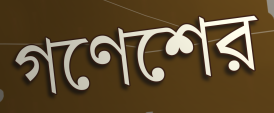
গণেশের